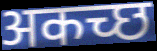
अकच्छ